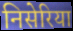
निसेरिया